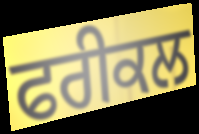
ਫਰੀਕਲ